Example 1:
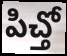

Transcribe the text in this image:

పిచ్తో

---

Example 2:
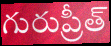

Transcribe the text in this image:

గురుప్రీత్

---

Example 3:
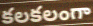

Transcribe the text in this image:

కలకలంగా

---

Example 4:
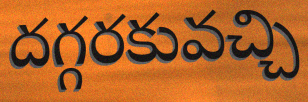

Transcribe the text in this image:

దగ్గరకువచ్చి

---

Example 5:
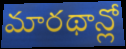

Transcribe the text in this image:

మారథాన్లో